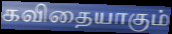
கவிதையாகும்